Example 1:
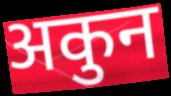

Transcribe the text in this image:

अकुन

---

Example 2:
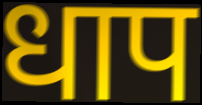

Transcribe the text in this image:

धाप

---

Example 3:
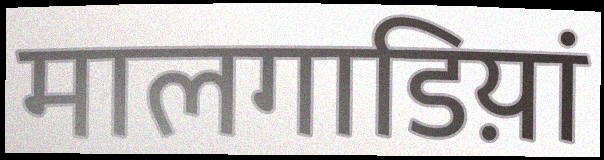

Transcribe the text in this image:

मालगाडिय़ां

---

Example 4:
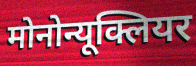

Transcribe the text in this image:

मोनोन्यूक्लियर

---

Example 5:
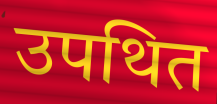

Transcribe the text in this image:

उपथित